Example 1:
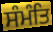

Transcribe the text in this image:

ਸੰਮੰਤਿ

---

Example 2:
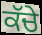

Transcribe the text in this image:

ਕੱਚੇ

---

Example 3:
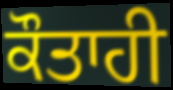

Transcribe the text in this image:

ਕੌਤਾਹੀ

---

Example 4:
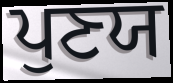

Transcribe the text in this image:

ਪੁਣਯ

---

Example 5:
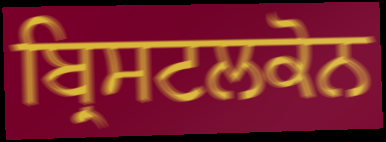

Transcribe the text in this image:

ਬ੍ਰਿਸਟਲਕੋਨ